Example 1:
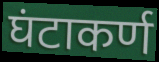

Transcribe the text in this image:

घंटाकर्ण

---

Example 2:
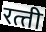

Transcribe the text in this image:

रत्‍ती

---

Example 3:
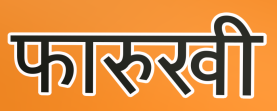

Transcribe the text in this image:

फारुखी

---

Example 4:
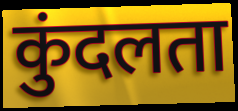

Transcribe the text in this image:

कुंदलता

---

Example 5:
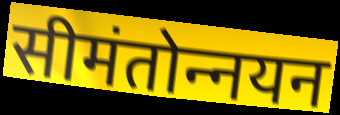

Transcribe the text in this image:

सीमंतोन्नयन